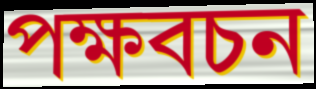
পক্ষবচন